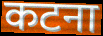
कटना